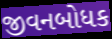
જીવનબોધક